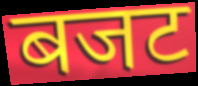
बजट